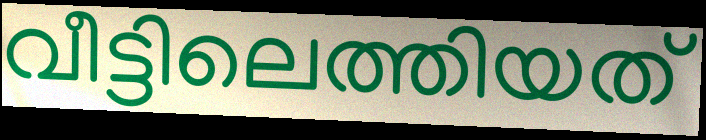
വീട്ടിലെത്തിയത്